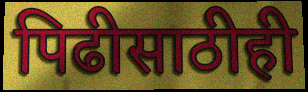
पिढीसाठीही